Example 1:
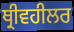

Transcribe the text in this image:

ਥ੍ਰੀਵਹੀਲਰ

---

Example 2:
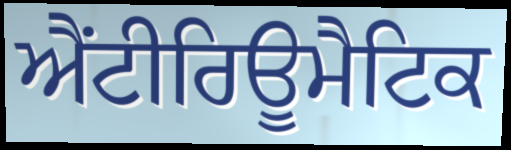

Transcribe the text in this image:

ਐਂਟੀਰਿਊਮੈਟਿਕ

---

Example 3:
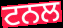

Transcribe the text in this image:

ਟਨਲ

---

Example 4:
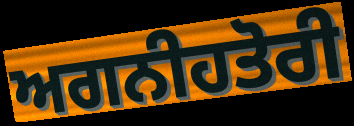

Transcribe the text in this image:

ਅਗਨੀਹਤੋਰੀ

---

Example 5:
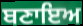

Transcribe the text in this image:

ਬਣਾਇਅ